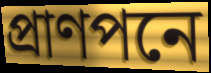
প্রাণপনে